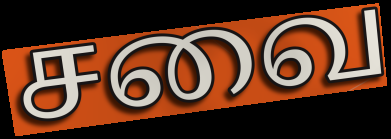
சவை